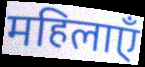
महिलाएँ